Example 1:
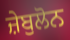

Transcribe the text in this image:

ਜ਼ੇਬੁਲੋਨ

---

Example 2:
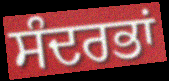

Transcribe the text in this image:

ਸੰਦਰਭਾਂ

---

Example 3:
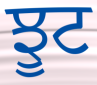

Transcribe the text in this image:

ਝੂਟ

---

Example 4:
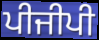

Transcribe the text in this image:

ਪੀਜੀਪੀ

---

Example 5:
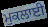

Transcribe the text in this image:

ਮੁਕਲਾਈ